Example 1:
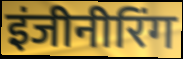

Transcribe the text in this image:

इंजीनीरिंग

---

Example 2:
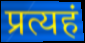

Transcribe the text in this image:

प्रत्यहं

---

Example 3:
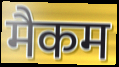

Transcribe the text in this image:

मैकम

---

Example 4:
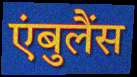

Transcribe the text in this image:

एंबुलैंस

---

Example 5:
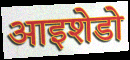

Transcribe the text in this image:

आइशेडो